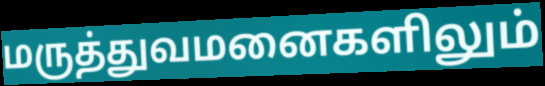
மருத்துவமனைகளிலும்